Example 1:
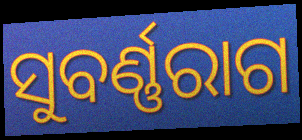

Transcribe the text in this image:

ସୁବର୍ଣ୍ଣରାଗ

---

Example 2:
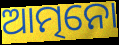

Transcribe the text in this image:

ଆତ୍ମନୋ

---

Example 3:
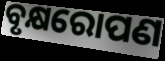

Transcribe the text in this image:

ବୃକ୍ଷରୋପଣ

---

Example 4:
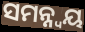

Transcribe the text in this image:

ସମନ୍ନ୍ୱୟ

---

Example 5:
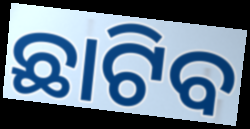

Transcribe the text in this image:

ଛାଟିବ